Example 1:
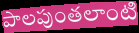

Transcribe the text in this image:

పాలపుంతలాంటి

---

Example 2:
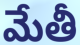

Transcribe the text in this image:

మేతీ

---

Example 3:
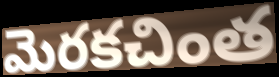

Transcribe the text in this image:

మెరకచింత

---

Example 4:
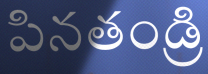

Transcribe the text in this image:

పినతండ్రి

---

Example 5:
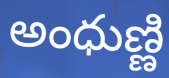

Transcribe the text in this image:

అంధుణ్ణి